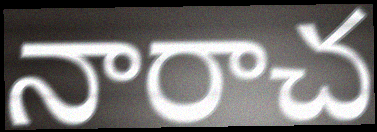
నారాచ